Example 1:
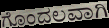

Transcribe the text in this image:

ಗೊಂದಲವಾಗಿ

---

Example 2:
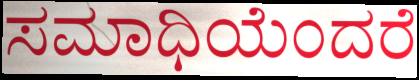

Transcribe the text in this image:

ಸಮಾಧಿಯೆಂದರೆ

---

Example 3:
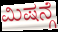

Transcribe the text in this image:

ಮಿಷನ್ಗೆ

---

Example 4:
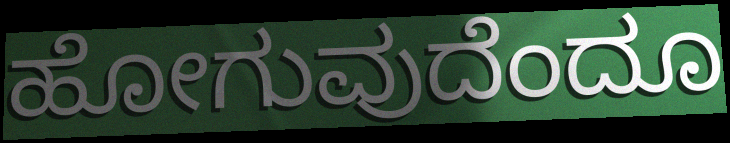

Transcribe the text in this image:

ಹೋಗುವುದೆಂದೂ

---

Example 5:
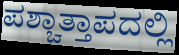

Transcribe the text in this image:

ಪಶ್ಚಾತ್ತಾಪದಲ್ಲಿ